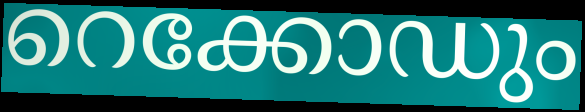
റെക്കോഡും